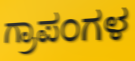
ಗ್ರಾಪಂಗಳ